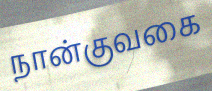
நான்குவகை